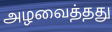
அழவைத்தது